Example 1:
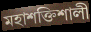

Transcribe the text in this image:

মহাশক্তিশালী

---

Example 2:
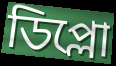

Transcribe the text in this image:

ডিপ্লো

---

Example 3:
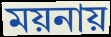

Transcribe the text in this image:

ময়নায়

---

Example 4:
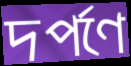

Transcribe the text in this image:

দর্পণে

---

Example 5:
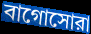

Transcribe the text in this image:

বাগোসোরা